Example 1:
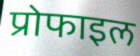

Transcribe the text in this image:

प्रोफाइल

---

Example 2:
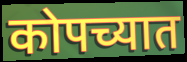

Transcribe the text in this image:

कोपच्यात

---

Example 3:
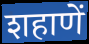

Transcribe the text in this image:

शहाणें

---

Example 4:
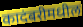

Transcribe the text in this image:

कादंबरीमधील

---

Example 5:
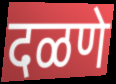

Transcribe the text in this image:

दळणे